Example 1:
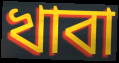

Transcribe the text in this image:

খাবা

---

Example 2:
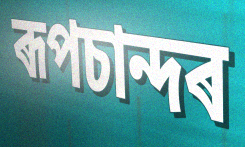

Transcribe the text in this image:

ৰূপচান্দৰ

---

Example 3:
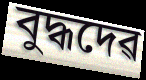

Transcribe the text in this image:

বুদ্ধদেৱ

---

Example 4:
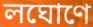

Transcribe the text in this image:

লঘোণে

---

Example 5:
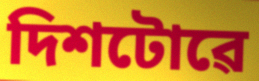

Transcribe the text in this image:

দিশটোৱে